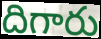
దిగారు